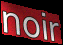
noir